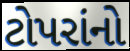
ટોપરાંનો